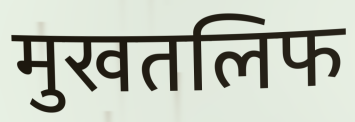
मुखतलिफ